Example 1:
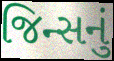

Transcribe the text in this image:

જિન્સનું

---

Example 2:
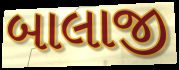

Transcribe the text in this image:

બાલાજી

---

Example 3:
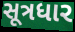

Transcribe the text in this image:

સૂત્રધાર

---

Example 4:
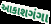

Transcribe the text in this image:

આકાશગંગા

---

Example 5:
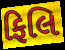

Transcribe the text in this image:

ફિલિ